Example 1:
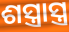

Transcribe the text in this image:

ଶସ୍ତ୍ରାସ୍ତ୍ର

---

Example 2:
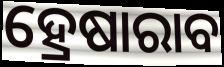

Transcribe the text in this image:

ହ୍ରେଷାରାବ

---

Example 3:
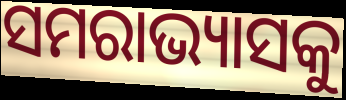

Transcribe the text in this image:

ସମରାଭ୍ୟାସକୁ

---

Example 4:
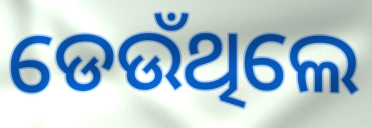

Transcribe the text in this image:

ଡେଉଁଥିଲେ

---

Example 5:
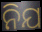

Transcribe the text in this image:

ନିଯ